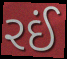
રઈં